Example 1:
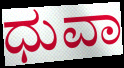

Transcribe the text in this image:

ಧುವಾ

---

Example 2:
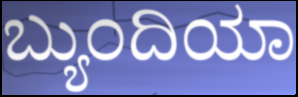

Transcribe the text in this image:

ಬ್ಯುಂದಿಯಾ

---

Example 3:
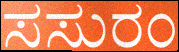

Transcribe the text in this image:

ಸಸುರಂ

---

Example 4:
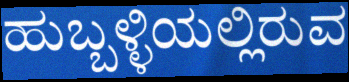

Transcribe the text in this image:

ಹುಬ್ಬಳ್ಳಿಯಲ್ಲಿರುವ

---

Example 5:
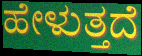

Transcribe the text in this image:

ಹೇಳುತ್ತದೆ